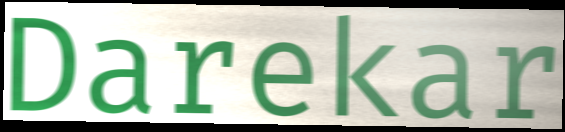
Darekar